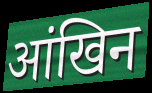
आंखिन